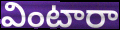
వింటారా